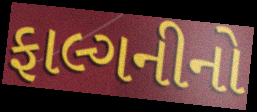
ફાલ્ગનીનો